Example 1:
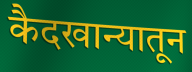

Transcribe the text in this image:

कैदखान्यातून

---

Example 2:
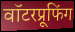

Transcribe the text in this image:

वॉटरप्रूफिंग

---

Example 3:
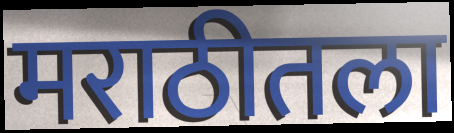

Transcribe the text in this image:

मराठीतला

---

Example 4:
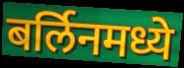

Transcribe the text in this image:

बर्लिनमध्ये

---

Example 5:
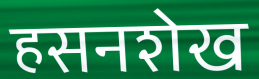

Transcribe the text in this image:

हसनशेख